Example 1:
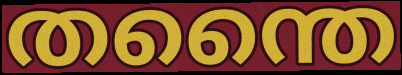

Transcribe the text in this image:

തന്തൈ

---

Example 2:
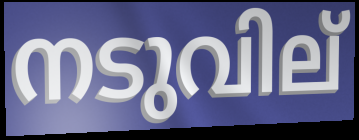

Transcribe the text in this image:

നടുവില്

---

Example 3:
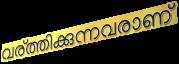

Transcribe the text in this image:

വര്ത്തിക്കുന്നവരാണ്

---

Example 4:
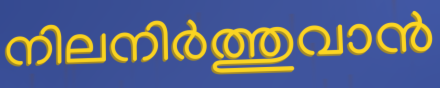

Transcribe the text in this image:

നിലനിർത്തുവാൻ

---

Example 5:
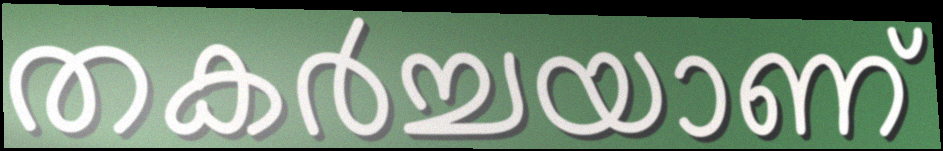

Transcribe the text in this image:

തകർച്ചയാണ്